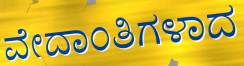
ವೇದಾಂತಿಗಳಾದ